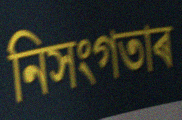
নিসংগতাৰ